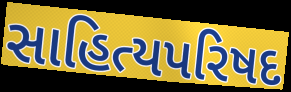
સાહિત્યપરિષદ